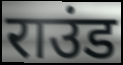
राउंड